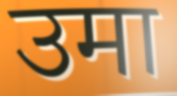
उमा